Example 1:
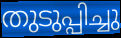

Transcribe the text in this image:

തുടുപ്പിച്ചു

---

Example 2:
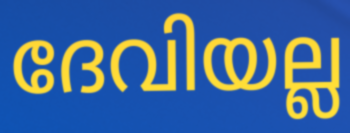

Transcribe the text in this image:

ദേവിയല്ല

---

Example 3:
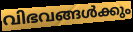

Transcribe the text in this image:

വിഭവങ്ങൾക്കും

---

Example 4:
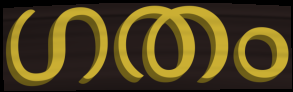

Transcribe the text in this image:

ഗതം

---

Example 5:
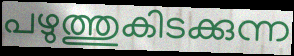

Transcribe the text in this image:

പഴുത്തുകിടക്കുന്ന